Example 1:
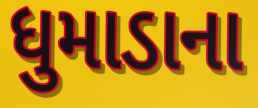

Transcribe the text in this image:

ધુમાડાના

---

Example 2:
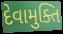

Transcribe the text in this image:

દેવામુક્તિ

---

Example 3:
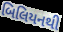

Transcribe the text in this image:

બિલિયનથી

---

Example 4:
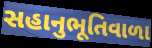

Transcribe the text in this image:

સહાનુભૂતિવાળા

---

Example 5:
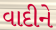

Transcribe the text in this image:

વાદીને